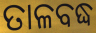
ତାଳବଦ୍ଧ